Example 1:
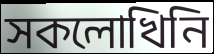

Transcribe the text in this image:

সকলোখিনি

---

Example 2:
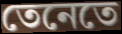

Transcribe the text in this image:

তেনেতে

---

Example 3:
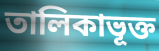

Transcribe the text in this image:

তালিকাভূক্ত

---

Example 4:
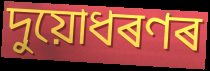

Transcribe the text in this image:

দুয়োধৰণৰ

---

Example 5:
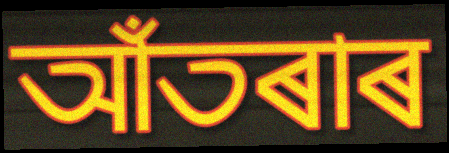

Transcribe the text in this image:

আঁতৰাৰ